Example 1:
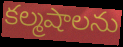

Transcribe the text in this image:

కల్మషాలను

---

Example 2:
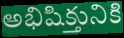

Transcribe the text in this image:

అభిషిక్తునికి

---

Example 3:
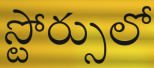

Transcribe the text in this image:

స్టోర్సులో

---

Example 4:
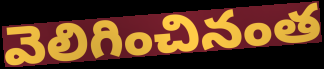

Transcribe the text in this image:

వెలిగించినంత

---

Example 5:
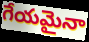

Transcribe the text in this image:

గేయమైనా